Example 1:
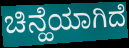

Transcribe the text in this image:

ಚಿನ್ಹೆಯಾಗಿದೆ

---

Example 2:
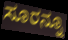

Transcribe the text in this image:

ಸೂರನ್ನೂ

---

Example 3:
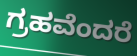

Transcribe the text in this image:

ಗ್ರಹವೆಂದರೆ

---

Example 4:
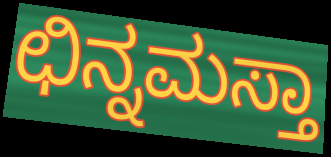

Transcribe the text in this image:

ಛಿನ್ನಮಸ್ತಾ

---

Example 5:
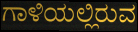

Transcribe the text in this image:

ಗಾಳಿಯಲ್ಲಿರುವ